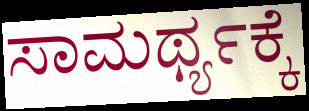
ಸಾಮರ್ಥ್ಯಕ್ಕೆ